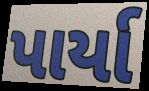
પાર્યા